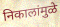
निकालांमुळे